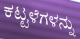
ಕಟ್ಟಳೆಗಳನ್ನು